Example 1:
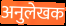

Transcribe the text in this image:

अनुलेखक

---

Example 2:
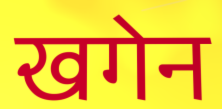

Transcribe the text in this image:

खगेन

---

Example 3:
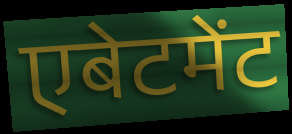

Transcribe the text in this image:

एबेटमेंट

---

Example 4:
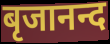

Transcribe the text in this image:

बृजानन्द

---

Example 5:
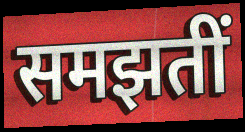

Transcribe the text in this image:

समझतीं